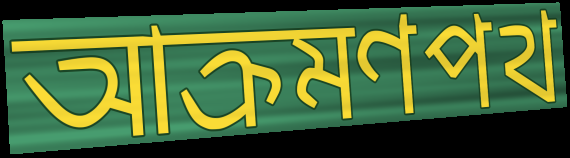
আক্রমণপথ